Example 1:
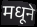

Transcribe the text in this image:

मधूने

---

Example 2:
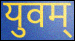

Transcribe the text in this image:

युवम्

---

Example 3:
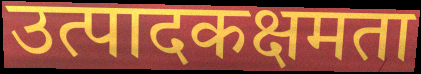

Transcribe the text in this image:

उत्पादकक्षमता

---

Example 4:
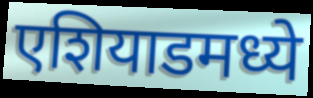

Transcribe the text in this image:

एशियाडमध्ये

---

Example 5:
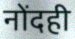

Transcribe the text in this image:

नोंदही